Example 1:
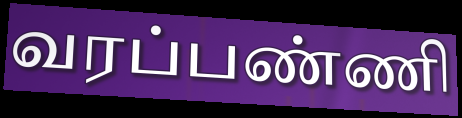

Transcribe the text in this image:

வரப்பண்ணி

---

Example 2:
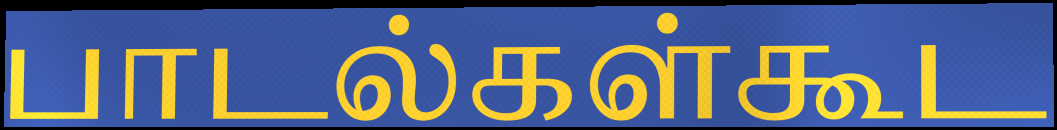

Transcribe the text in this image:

பாடல்கள்கூட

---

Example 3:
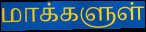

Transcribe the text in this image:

மாக்களுள்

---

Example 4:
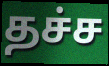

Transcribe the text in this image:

தச்ச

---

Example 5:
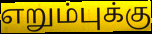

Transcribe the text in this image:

எறும்புக்கு